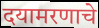
दयामरणाचे